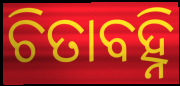
ଚିତାବହ୍ନି